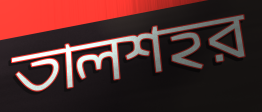
তালশহর